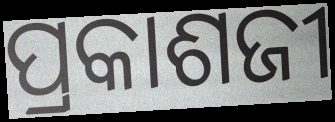
ପ୍ରକାଶଜୀ